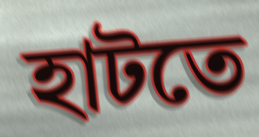
হাটতে